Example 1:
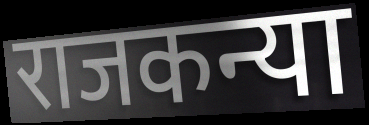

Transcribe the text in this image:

राजकन्या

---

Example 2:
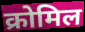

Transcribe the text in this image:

क्रोमिल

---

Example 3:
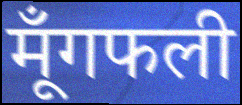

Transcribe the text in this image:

मूँगफली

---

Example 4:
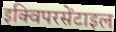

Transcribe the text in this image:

इक्विपरसेंटाइल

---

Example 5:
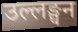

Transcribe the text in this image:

उल्लङ्घन